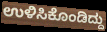
ಉಳಿಸಿಕೊಂಡಿದ್ದು